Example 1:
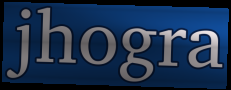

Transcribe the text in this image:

jhogra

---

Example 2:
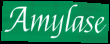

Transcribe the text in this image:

Amylase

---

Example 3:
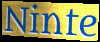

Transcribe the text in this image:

Ninte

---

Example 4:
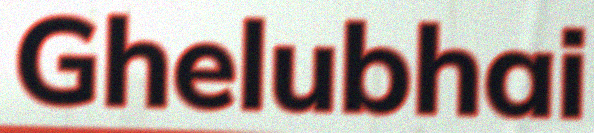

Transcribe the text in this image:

Ghelubhai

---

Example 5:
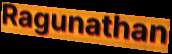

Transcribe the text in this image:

Ragunathan